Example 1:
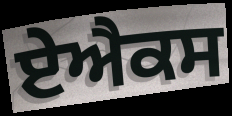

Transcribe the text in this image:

ਏਐਕਸ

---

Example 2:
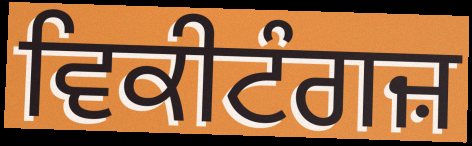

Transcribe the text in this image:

ਵਿਕੀਟੰਗਜ਼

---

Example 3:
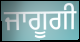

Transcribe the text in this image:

ਜਾਗੂਗੀ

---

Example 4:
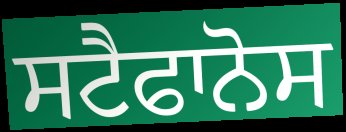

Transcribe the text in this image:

ਸਟੈਫਾਨੋਸ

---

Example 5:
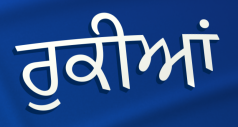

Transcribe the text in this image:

ਰੁਕੀਆਂ